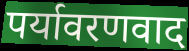
पर्यावरणवाद